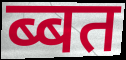
ब्बत